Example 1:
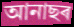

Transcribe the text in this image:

আনাছৰ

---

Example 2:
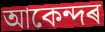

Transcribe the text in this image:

আকেন্দৰ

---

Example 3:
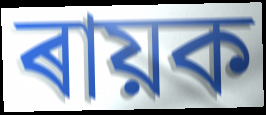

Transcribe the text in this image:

ৰায়ক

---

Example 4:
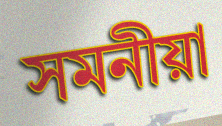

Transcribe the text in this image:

সমনীয়া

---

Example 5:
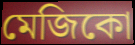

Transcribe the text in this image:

মেজিকো